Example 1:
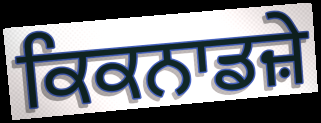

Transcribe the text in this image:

ਕਿਕਨਾਡਜ਼ੇ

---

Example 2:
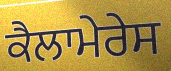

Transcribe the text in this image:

ਕੈਲਾਮੇਰੇਸ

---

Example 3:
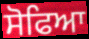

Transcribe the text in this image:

ਸੋਫਿਆ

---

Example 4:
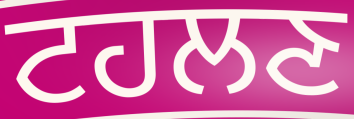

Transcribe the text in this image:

ਟਹਲਣ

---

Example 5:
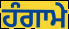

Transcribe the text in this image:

ਹੰਗਾਮੇ